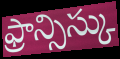
ఫ్రాన్సిస్కు